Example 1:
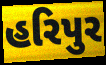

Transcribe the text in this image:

હરિપુર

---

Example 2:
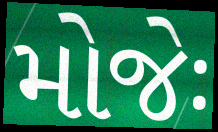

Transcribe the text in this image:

મોજેઃ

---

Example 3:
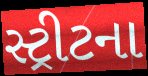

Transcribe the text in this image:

સ્ટ્રીટના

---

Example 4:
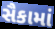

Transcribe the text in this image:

સૈકામાં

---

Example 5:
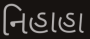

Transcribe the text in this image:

નિહાહા